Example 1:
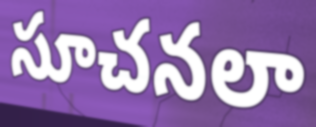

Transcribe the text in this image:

సూచనలా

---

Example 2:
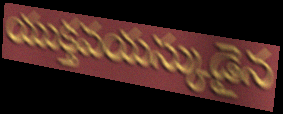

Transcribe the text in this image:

యుక్తవయస్కుడైన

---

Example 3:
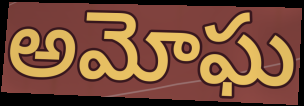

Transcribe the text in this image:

అమోఘ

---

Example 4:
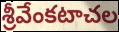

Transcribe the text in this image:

శ్రీవేంకటాచల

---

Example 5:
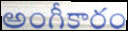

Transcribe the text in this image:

అంగీకారం